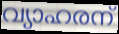
വ്യാഹരന്